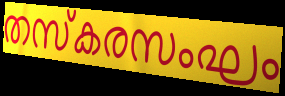
തസ്കരസംഘം